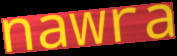
nawra